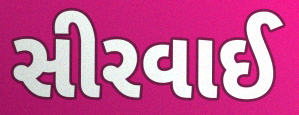
સીરવાઈ